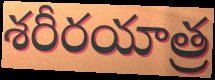
శరీరయాత్ర